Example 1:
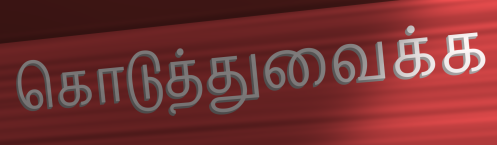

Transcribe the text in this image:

கொடுத்துவைக்க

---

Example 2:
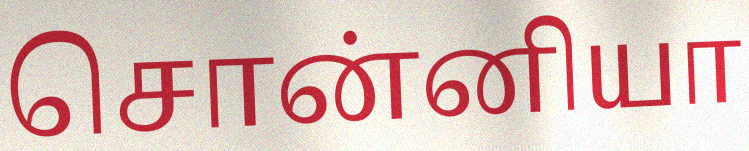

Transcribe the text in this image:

சொன்னியா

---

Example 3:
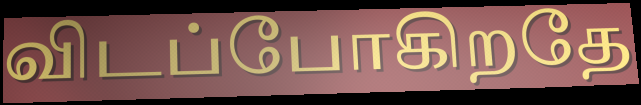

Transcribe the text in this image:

விடப்போகிறதே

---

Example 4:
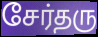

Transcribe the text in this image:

சேர்தரு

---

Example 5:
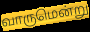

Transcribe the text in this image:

வாருமென்று